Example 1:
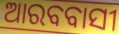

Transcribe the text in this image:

ଆରବବାସୀ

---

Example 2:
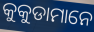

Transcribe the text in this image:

କୁକୁଡାମାନେ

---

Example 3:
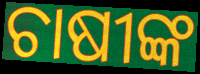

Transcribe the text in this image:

ଚାଷୀଙ୍କ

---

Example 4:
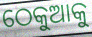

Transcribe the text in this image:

ଠେକୁଆକୁ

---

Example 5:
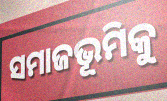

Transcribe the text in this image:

ସମାଜଭୂମିକୁ